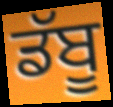
ਡੱਬੂ